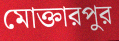
মোক্তারপুর